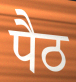
पैठ